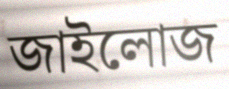
জাইলোজ